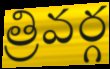
త్రివర్గ